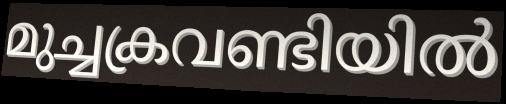
മുച്ചക്രവണ്ടിയിൽ